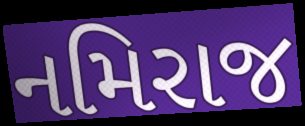
નમિરાજ